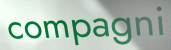
compagni